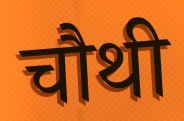
चौथी